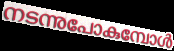
നടന്നുപോകുമ്പോൾ